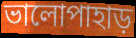
ভালোপাহাড়